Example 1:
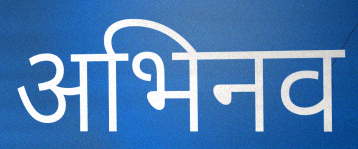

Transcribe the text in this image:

अभिनव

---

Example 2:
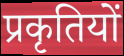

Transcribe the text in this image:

प्रकृतियों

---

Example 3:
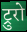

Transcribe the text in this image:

ट्रुरो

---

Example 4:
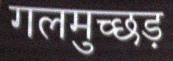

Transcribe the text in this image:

गलमुच्छड़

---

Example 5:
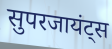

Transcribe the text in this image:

सुपरजायंट्स